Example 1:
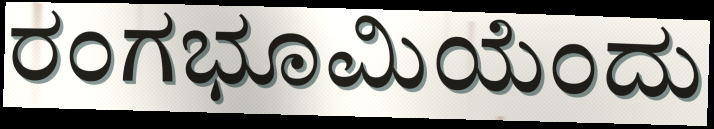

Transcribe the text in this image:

ರಂಗಭೂಮಿಯೆಂದು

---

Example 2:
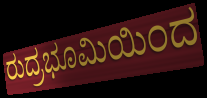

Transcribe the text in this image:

ರುದ್ರಭೂಮಿಯಿಂದ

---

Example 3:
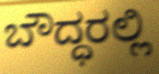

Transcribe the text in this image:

ಬೌದ್ಧರಲ್ಲಿ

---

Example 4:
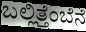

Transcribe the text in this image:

ಬಲ್ಲಿತ್ತೆಂಬೆನೆ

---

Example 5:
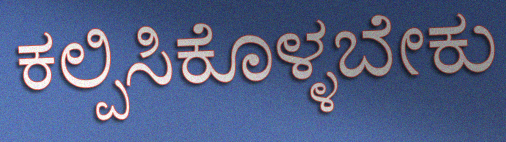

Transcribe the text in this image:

ಕಲ್ಪಿಸಿಕೊಳ್ಳಬೇಕು